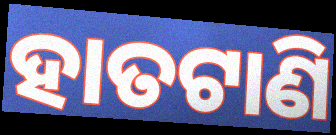
ହାତଟାଣି